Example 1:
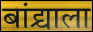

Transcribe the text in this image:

बांद्र्याला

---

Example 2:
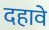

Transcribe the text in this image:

दहावे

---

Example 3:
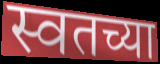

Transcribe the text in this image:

स्वतच्या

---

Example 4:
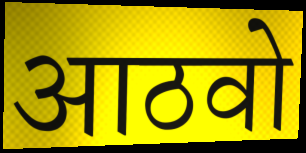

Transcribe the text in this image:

आठवो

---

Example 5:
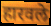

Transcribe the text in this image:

हारवले